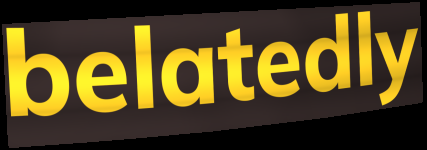
belatedly